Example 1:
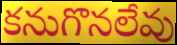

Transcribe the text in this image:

కనుగొనలేవు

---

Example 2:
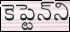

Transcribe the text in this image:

కెప్టెన్‌ని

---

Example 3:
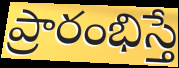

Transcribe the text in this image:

ప్రారంభిస్తే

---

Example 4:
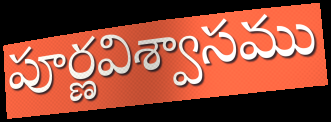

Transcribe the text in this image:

పూర్ణవిశ్వాసము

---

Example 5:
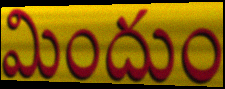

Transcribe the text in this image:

మిందుం